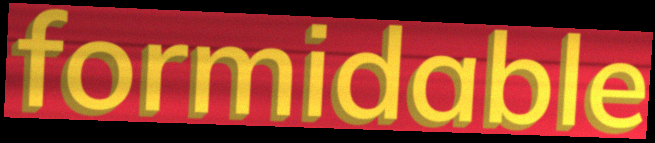
formidable